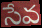
సేవ